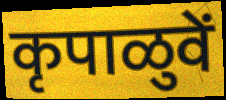
कृपाळुवें